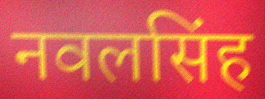
नवलसिंह